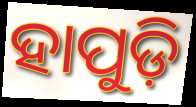
ହାପୁଡ଼ି